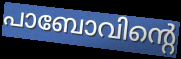
പാബോവിന്റെ